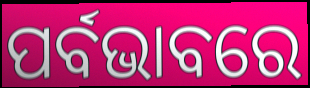
ପର୍ବଭାବରେ